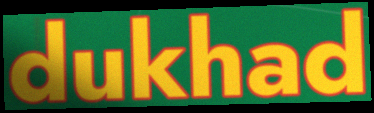
dukhad